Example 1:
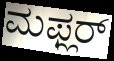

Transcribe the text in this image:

ಮಫ್ಲರ್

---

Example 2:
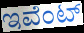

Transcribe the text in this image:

ಇವೆಂಟ್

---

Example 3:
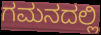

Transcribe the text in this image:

ಗಮನದಲ್ಲಿ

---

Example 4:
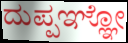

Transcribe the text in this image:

ದುಪ್ಪಞ್ಞೋ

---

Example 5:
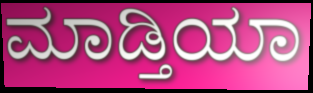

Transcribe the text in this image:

ಮಾಡ್ತಿಯಾ